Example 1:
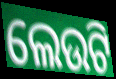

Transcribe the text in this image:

ଲେଉଟି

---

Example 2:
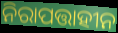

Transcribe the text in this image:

ନିରାପତ୍ତାହୀନ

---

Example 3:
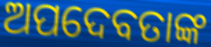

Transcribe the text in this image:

ଅପଦେବତାଙ୍କ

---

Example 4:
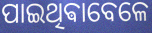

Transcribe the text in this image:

ପାଇଥିଵାବେଳେ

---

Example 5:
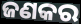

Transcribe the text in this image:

ଜଣକର